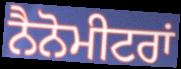
ਨੈਨੋਮੀਟਰਾਂ